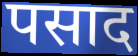
पसाद